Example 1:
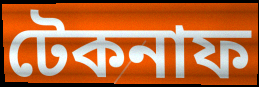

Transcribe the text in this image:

টেকনাফ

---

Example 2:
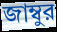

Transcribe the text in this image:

জাম্বুর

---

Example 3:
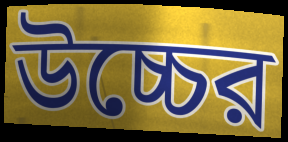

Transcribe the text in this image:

উচ্চের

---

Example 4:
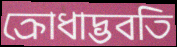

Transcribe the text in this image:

ক্রোধাদ্ভবতি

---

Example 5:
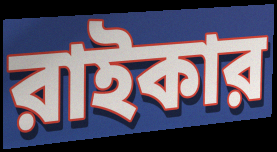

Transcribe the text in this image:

রাইকার